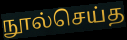
நூல்செய்த